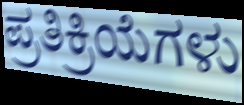
ಪ್ರತಿಕ್ರಿಯೆಗಳು